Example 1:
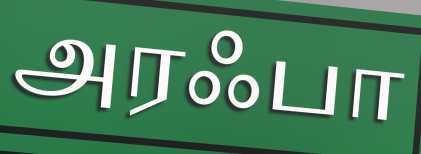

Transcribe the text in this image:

அரஃபா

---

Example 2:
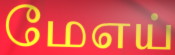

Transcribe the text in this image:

மேஎய்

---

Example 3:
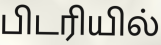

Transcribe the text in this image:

பிடரியில்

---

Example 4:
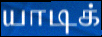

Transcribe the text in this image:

யாடிக்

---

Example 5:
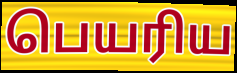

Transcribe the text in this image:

பெயரிய